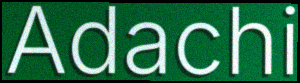
Adachi